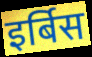
इर्बिस